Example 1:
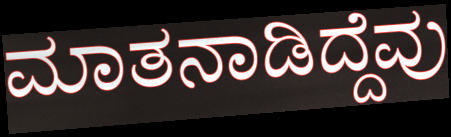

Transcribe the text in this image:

ಮಾತನಾಡಿದ್ದೆವು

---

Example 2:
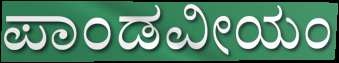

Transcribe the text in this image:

ಪಾಂಡವೀಯಂ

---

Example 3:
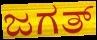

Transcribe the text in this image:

ಜಗತ್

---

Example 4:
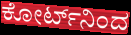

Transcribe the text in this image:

ಕೋರ್ಟ್‌ನಿಂದ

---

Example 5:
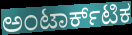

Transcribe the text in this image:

ಅಂಟಾರ್ಕ್‍ಟಿಕ